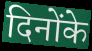
दिनोंके